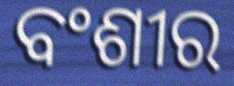
ବଂଶୀର